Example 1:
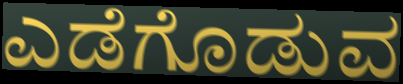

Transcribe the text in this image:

ಎಡೆಗೊಡುವ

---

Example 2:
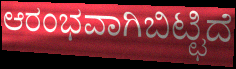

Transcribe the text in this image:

ಆರಂಭವಾಗಿಬಿಟ್ಟಿದೆ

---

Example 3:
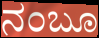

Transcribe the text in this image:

ನಂಬೂ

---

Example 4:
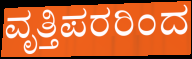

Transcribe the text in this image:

ವೃತ್ತಿಪರರಿಂದ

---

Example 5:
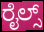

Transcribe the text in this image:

ರೈಲ್ಸ್